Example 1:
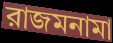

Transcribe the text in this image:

রাজমনামা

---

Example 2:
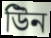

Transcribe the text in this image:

উিন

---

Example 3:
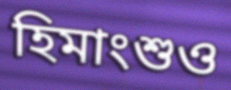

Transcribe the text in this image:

হিমাংশুও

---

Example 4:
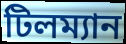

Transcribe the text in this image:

টিলম্যান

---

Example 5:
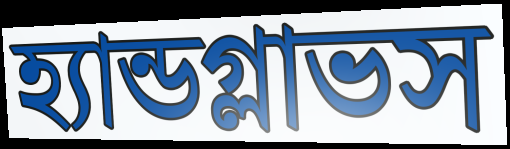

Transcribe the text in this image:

হ্যান্ডগ্লাভস